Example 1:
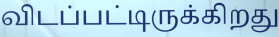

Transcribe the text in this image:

விடப்பட்டிருக்கிறது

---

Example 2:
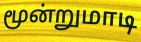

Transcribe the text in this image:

மூன்றுமாடி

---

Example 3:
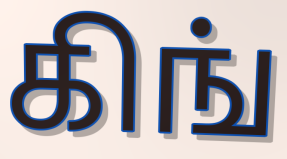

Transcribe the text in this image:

கிங்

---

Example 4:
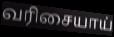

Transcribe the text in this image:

வரிசையாய்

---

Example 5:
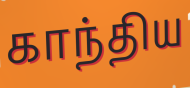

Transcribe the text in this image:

காந்திய